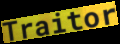
Traitor